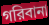
গরিবানা